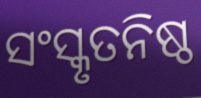
ସଂସ୍କୃତନିଷ୍ଠ